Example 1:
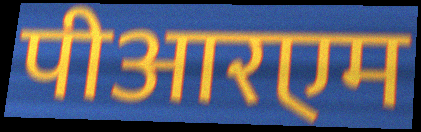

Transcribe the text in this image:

पीआरएम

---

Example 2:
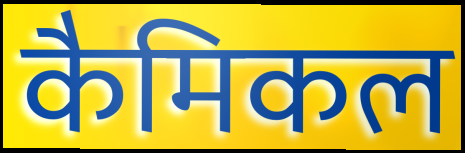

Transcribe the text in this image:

कैमिकल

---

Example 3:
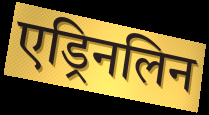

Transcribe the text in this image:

एड्रिनलिन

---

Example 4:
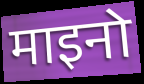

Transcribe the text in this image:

माइनो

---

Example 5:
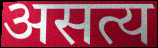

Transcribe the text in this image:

असत्य